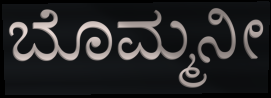
ಬೊಮ್ಮನೀ